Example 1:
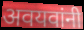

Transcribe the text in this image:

अवयवांनी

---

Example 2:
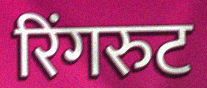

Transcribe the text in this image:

रिंगरुट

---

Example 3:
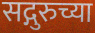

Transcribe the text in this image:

सद्गुरुच्या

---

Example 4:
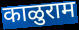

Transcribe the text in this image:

काळुराम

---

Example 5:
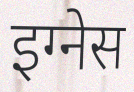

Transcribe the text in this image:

इग्नेस